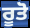
ਰੂਤੋ